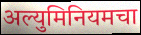
अल्युमिनियमचा